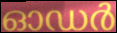
ഓഡർ